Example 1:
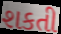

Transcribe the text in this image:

શકતી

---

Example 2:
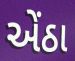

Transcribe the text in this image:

એંઠા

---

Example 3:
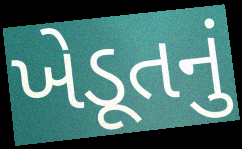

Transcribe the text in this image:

ખેડૂતનું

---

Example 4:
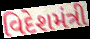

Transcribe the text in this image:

વિદેશમંત્રી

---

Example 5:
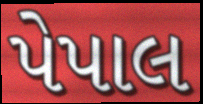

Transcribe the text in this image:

પેપાલ